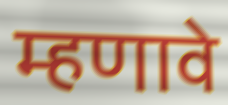
म्हणावे